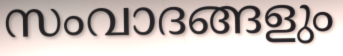
സംവാദങ്ങളും